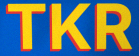
TKR